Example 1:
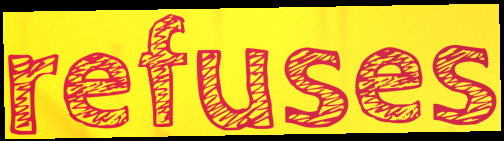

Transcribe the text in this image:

refuses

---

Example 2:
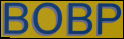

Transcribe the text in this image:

BOBP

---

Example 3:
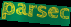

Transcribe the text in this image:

parsec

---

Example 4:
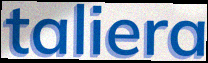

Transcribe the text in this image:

taliera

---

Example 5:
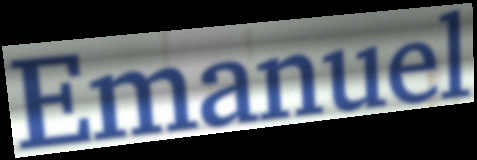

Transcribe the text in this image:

Emanuel